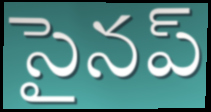
సైనప్